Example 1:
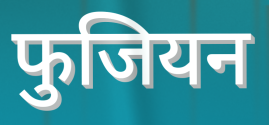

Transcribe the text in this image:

फुजियन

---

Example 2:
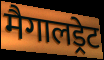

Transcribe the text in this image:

मैगालड्रेट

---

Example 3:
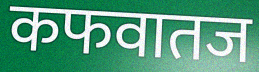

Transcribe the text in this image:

कफवातज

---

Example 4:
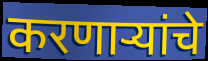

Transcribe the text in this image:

करणाऱ्यांचे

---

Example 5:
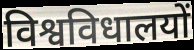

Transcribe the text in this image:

विश्वविधालयों